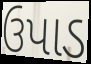
ઉપાડ